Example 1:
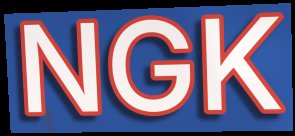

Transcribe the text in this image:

NGK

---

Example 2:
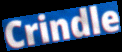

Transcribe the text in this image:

Crindle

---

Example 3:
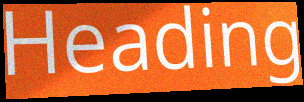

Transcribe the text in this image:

Heading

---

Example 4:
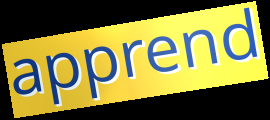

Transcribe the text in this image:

apprend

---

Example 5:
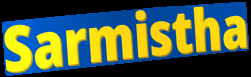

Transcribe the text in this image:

Sarmistha